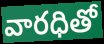
వారధితో